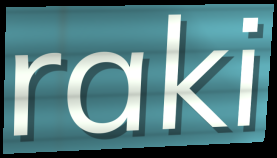
raki